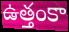
ఉత్తంకా